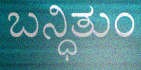
ಬನ್ಧಿತುಂ